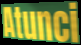
Atunci